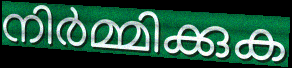
നിർമ്മിക്കുക